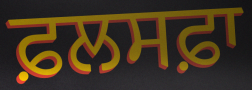
ਫ਼ਲਸਫ਼ਾ